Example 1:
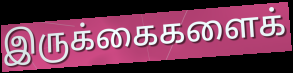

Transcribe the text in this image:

இருக்கைகளைக்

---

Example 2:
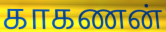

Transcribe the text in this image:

காகணன்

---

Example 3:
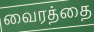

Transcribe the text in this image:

வைரத்தை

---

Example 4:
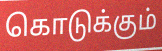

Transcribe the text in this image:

கொடுக்கும்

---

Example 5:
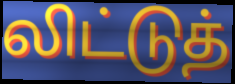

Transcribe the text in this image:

லிட்டுத்